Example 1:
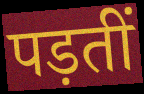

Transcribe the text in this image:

पड़तीं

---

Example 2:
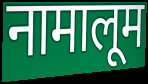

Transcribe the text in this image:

नामालूम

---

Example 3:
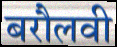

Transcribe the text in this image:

बरौलवी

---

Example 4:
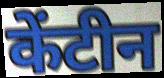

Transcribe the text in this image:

केंटीन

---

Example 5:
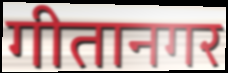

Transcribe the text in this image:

गीतानगर